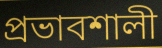
প্ৰভাবশালী